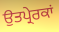
ਉਤਪ੍ਰੇਰਕਾਂ